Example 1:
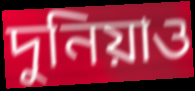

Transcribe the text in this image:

দুনিয়াও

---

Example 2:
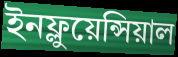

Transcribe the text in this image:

ইনফ্লুয়েন্সিয়াল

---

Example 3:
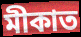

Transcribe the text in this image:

মীকাত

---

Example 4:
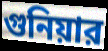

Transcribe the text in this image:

গুনিয়ার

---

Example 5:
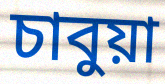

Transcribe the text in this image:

চাবুয়া